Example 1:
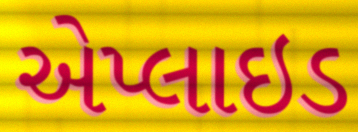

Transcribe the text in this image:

એપ્લાઇડ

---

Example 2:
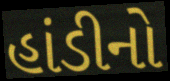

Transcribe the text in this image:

હાંડીનો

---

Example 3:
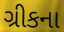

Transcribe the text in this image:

ગ્રીકના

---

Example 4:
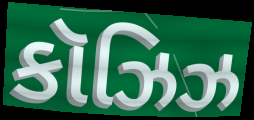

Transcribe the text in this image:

કૉઝિઝ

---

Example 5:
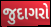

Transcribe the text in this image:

જુદાગરો